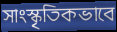
সাংস্কৃতিকভাবে